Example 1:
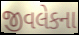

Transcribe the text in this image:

જીવલેકના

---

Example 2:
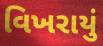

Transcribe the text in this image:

વિખરાયું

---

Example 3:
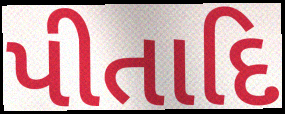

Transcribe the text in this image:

પીતાદિ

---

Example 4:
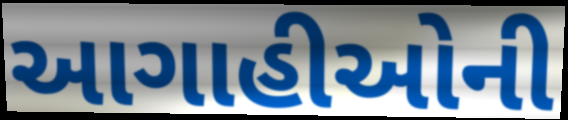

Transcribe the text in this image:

આગાહીઓની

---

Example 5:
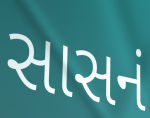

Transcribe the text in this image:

સાસનં